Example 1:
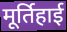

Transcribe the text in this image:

मूर्तिहाई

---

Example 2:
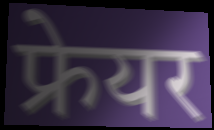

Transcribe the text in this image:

फ्रेयर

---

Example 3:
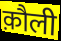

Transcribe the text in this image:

क़ौली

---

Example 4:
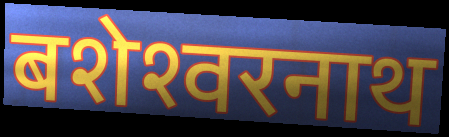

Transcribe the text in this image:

बशेश्वरनाथ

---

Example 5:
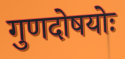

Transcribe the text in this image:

गुणदोषयोः